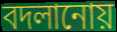
বদলানোয়